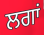
ਲਗਾਂ